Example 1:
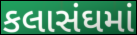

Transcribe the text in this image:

કલાસંઘમાં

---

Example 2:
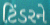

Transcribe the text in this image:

ટિંડરને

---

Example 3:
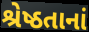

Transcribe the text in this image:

શ્રેષ્ઠતાનાં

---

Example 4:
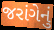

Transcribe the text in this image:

જરાંગેનું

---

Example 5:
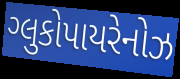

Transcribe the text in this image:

ગ્લુકોપાયરેનોઝ